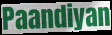
Paandiyan